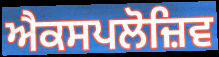
ਐਕਸਪਲੋਜ਼ਿਵ